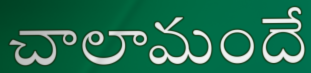
చాలామందే